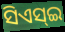
ସିଏସ୍ଇ